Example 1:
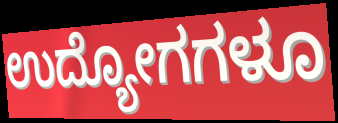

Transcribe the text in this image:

ಉದ್ಯೋಗಗಳೂ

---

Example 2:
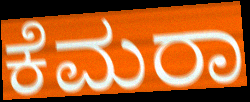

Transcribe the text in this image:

ಕೆಮರಾ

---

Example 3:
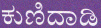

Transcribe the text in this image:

ಕುಣಿದಾಡಿ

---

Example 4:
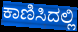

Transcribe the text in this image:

ಕಾಣಿಸಿದಲ್ಲಿ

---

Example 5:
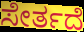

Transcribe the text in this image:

ಸೇರ್ತದೆ